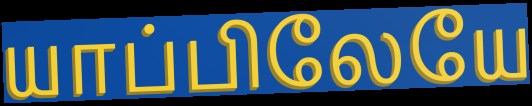
யாப்பிலேயே